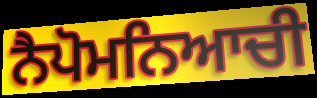
ਨੈਪੋਮਨਿਆਚੀ